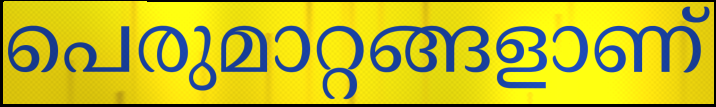
പെരുമാറ്റങ്ങളാണ്